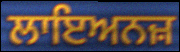
ਲਾਇਅਨਜ਼